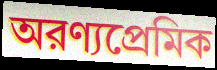
অরণ্যপ্রেমিক